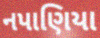
નપાણિયા